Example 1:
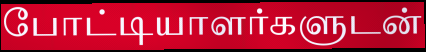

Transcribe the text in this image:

போட்டியாளர்களுடன்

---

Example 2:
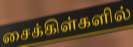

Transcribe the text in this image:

சைக்கிள்களில்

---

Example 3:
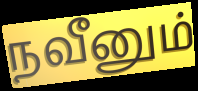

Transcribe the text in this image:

நவீனும்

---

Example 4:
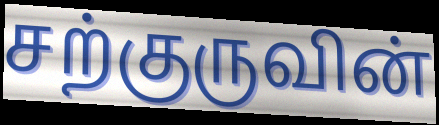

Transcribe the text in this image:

சற்குருவின்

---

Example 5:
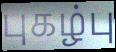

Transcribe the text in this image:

புகழ்பு